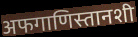
अफगाणिस्तानशी